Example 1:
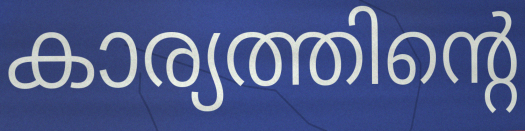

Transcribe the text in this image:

കാര്യത്തിന്റെ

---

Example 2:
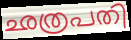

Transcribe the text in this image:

ഛത്രപതി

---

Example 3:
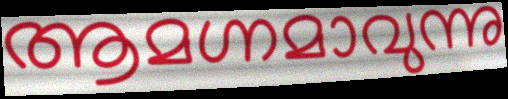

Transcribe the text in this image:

ആമഗ്നമാവുന്നു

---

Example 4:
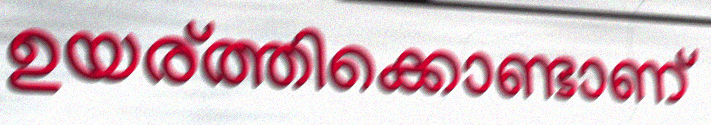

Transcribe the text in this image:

ഉയര്ത്തിക്കൊണ്ടാണ്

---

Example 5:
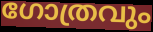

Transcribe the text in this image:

ഗോത്രവും